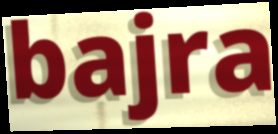
bajra